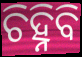
ଚିହ୍ନିବି